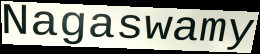
Nagaswamy